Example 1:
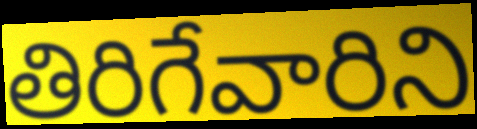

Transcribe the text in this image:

తిరిగేవారిని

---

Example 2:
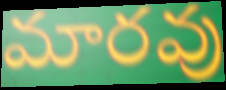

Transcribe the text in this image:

మారవు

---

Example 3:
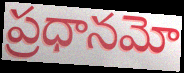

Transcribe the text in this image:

ప్రధానమో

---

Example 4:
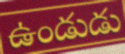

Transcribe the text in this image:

ఉండుడు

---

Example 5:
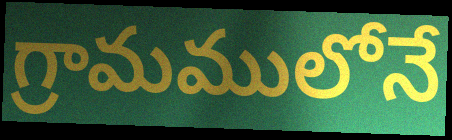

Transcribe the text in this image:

గ్రామములోనే